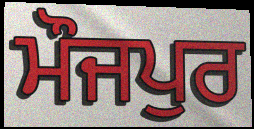
ਮੌਜਪੁਰ